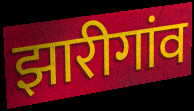
झारीगांव